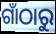
ଗାଁଠାରୁ